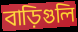
বাড়িগুলি